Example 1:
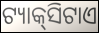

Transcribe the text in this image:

ଟ୍ୟାକ୍‌ସିଟାଏ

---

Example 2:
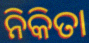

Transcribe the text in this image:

ନିକିତା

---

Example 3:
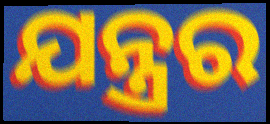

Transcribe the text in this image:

ଯନ୍ତ୍ରର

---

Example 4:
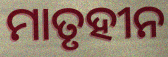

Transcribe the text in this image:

ମାତୃହୀନ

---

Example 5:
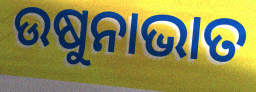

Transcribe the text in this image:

ଉଷୁନାଭାତ